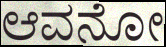
ಆವನೋ